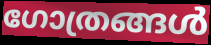
ഗോത്രങ്ങൾ